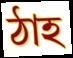
ঠাহ